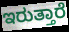
ಇರುತ್ತಾರೆ